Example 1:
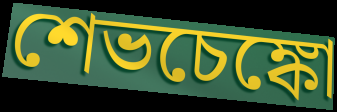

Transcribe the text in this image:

শেভচেঙ্কো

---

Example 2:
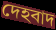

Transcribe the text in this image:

দেহবাদ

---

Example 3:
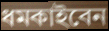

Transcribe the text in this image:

ধমকাইবেন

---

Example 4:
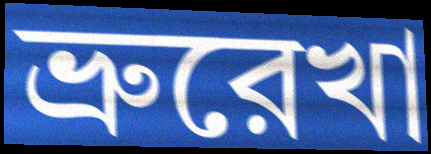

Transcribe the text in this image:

ভ্রুরেখা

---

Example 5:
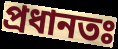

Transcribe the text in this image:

প্রধানতঃ